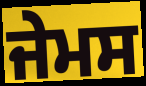
ਜੇਮਸ